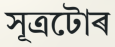
সূত্ৰটোৰ